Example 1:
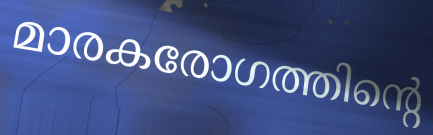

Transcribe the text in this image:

മാരകരോഗത്തിന്റെ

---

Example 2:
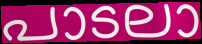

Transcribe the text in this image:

പാടലാ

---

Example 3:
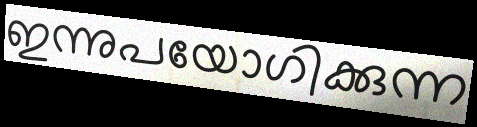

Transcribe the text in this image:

ഇന്നുപയോഗിക്കുന്ന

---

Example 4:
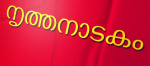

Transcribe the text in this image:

നൃത്തനാടകം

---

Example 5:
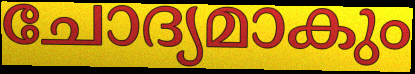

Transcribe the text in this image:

ചോദ്യമാകും